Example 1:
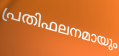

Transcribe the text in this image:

പ്രതിഫലനമായും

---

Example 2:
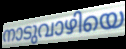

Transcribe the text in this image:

നാടുവാഴിയെ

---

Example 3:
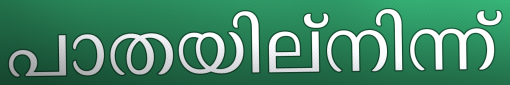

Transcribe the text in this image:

പാതയില്നിന്ന്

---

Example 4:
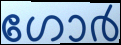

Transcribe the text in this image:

ഗോർ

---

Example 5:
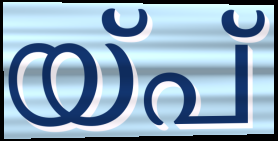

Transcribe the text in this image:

യ്പ്